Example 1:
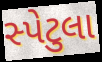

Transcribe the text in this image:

સ્પેટુલા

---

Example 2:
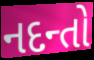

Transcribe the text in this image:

નદન્તો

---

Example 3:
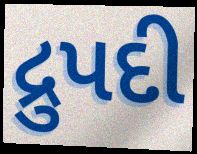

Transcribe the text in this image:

દ્રુપદી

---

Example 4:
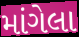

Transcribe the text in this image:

માંગેલા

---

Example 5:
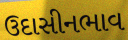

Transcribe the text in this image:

ઉદાસીનભાવ